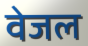
वेजल